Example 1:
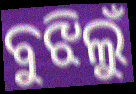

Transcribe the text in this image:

ବୁଝିଲୁଁ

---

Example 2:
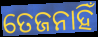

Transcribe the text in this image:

ତେଜନାହିଁ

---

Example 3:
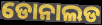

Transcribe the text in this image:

ଡୋନାଲଡ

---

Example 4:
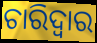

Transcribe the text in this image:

ଚାରିଦ୍ୱାର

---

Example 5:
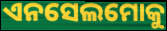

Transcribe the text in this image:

ଏନସେଲମୋକୁ